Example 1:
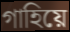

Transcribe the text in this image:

গাহিয়ে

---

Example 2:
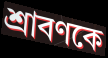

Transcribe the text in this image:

শ্রাবণকে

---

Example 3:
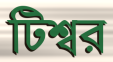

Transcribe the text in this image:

টিশ্বর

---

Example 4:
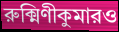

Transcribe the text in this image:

রুক্মিণীকুমারও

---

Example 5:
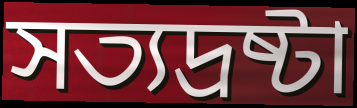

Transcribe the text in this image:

সত্যদ্রষ্টা